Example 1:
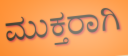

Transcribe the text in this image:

ಮುಕ್ತರಾಗಿ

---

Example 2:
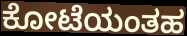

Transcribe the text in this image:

ಕೋಟೆಯಂತಹ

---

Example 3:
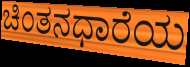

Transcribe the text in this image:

ಚಿಂತನಧಾರೆಯ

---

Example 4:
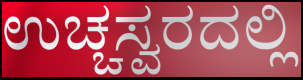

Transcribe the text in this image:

ಉಚ್ಚಸ್ವರದಲ್ಲಿ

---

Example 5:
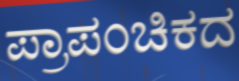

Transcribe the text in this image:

ಪ್ರಾಪಂಚಿಕದ